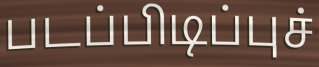
படப்பிடிப்புச்